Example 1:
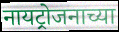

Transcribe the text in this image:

नायट्रोजनाच्या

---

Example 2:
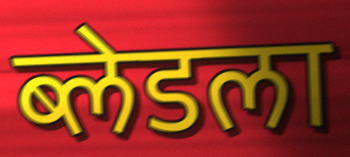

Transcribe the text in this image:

ब्लेडला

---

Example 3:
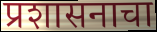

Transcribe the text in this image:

प्रशासनाचा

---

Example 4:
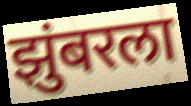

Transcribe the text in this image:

झुंबरला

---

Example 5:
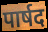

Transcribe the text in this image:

पार्षद